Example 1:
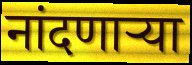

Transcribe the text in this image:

नांदणार्‍या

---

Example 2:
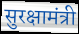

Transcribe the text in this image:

सुरक्षामंत्री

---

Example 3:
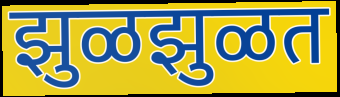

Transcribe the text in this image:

झुळझुळत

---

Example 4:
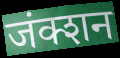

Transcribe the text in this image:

जंक्शन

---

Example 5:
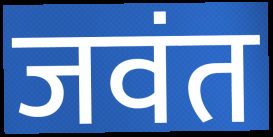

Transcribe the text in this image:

जवंत